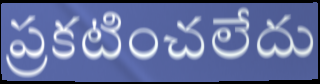
ప్రకటించలేదు